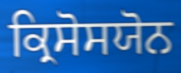
ਕ੍ਰਿਸੋਸਯੋਨ